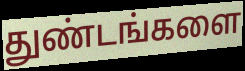
துண்டங்களை